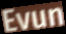
Evun